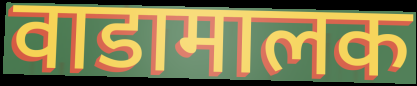
वाडामालक